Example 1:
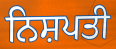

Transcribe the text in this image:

ਨਿਸ਼ਪਤੀ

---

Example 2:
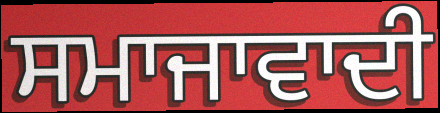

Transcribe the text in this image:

ਸਮਾਜਾਵਾਦੀ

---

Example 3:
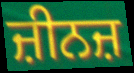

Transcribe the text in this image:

ਜ਼ੀਨਜ਼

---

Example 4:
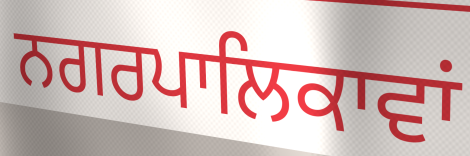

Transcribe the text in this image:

ਨਗਰਪਾਲਿਕਾਵਾਂ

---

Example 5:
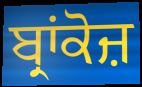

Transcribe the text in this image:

ਬ੍ਰਾਂਕੋਜ਼